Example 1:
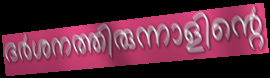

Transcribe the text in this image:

ദർശനത്തിരുന്നാളിന്റെ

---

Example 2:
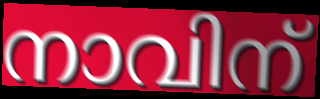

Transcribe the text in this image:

നാവിന്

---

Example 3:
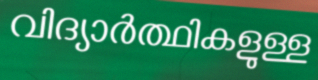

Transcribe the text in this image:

വിദ്യാർത്ഥികളുള്ള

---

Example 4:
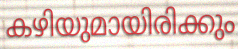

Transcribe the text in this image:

കഴിയുമായിരിക്കും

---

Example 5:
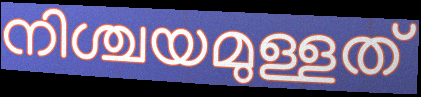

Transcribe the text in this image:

നിശ്ചയമുള്ളത്